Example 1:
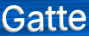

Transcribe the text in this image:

Gatte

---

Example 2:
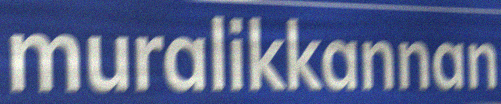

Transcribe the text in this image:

muralikkannan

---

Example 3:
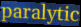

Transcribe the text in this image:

paralytic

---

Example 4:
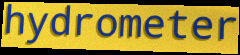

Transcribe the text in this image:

hydrometer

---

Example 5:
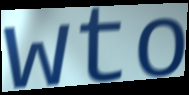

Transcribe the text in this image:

wto